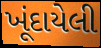
ખૂંદાયેલી